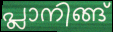
പ്ലാനിങ്ങ്